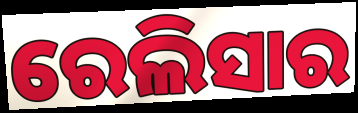
ରେଲିସାର